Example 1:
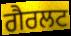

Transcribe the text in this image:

ਗੈਰਲਟ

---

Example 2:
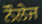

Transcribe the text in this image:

ਨੌਲੇਜ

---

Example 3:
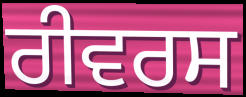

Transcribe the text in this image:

ਰੀਵਰਸ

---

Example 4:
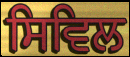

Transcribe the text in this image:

ਸਿਵਿਲ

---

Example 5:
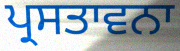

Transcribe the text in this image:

ਪ੍ਰਸਤਾਵਨਾ